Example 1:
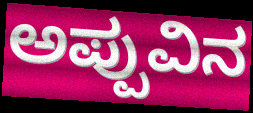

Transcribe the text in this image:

ಅಪ್ಪುವಿನ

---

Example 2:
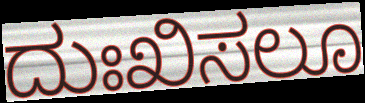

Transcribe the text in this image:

ದುಃಖಿಸಲೂ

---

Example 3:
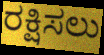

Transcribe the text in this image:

ರಕ್ಷಿಸಲು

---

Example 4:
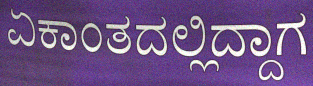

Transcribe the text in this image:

ಏಕಾಂತದಲ್ಲಿದ್ದಾಗ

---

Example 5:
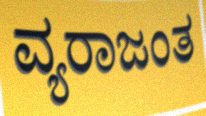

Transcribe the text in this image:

ವ್ಯರಾಜಂತ